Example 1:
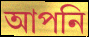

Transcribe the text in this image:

আপনি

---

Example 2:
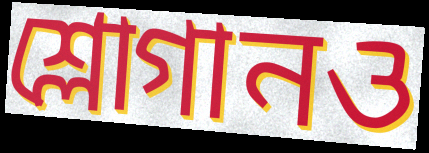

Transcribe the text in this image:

শ্লোগানও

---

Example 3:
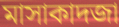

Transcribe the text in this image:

মাসাকাদজা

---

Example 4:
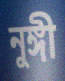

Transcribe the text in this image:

নুঙ্গী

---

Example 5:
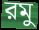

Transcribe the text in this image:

রমু